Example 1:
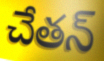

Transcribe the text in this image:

చేతన్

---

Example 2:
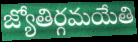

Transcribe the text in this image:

జ్యోతిర్గమయేతి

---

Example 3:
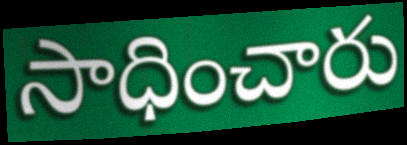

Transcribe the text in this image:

సాధించారు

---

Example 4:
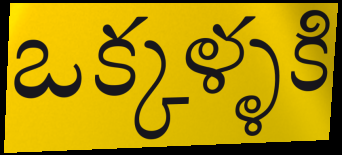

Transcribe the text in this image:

ఒక్కళ్ళకి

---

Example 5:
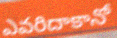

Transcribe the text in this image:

ఎవరిదాకానో